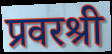
प्रवरश्री